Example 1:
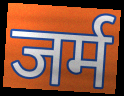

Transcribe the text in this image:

जर्म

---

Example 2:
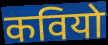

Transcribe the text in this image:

कवियो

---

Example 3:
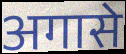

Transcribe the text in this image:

अगासे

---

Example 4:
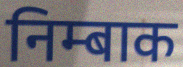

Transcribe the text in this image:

निम्बाक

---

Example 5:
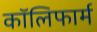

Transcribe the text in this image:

कॉलिफार्म